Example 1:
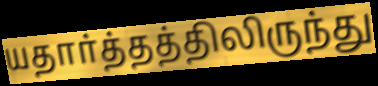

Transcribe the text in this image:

யதார்த்தத்திலிருந்து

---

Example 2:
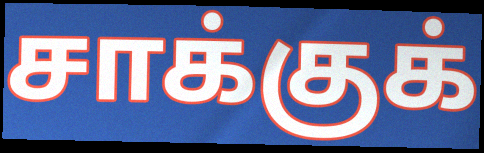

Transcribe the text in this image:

சாக்குக்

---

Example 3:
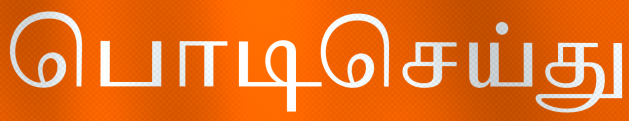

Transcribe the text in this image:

பொடிசெய்து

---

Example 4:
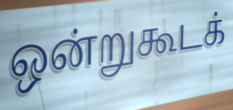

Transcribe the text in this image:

ஒன்றுகூடக்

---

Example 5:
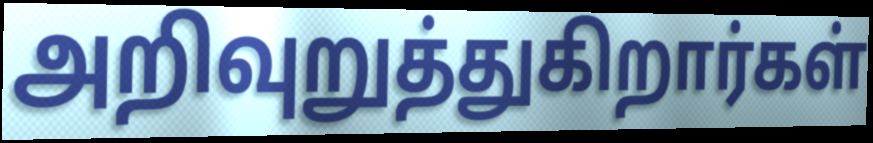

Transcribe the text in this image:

அறிவுறுத்துகிறார்கள்